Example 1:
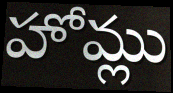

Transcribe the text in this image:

హోమ్లు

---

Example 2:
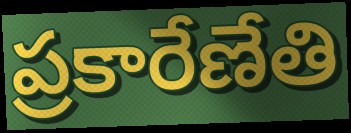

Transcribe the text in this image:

ప్రకారేణేతి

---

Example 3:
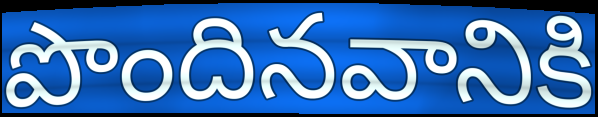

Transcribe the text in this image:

పొందినవానికి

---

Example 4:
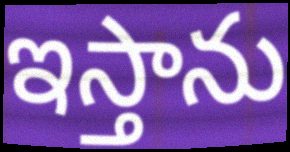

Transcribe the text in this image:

ఇస్తాను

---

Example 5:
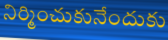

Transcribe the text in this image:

నిర్మించుకునేందుకు